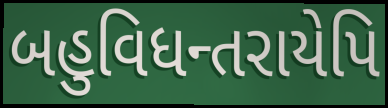
બહુવિધન્તરાયેપિ